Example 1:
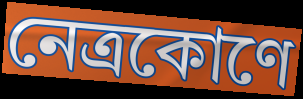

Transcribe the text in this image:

নেত্রকোণে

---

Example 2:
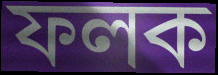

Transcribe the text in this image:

ফলক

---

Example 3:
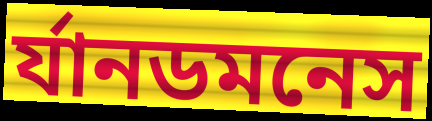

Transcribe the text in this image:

র্যানডমনেস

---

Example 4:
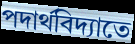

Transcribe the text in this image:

পদার্থবিদ্যাতে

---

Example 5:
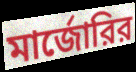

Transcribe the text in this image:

মার্জোরির